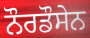
ਨੌਰਡੌਸੇਨ